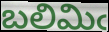
బలిమిఁ